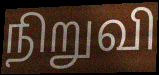
நிறுவி